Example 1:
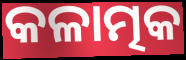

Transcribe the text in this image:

କଳାତ୍ମକ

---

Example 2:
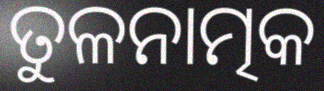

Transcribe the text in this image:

ତୁଳନାତ୍ମକ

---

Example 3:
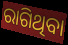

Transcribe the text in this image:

ରାଗିଥିବା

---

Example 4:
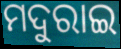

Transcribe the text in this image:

ମଦୁରାଇ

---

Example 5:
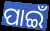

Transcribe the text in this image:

ପାଇଁ